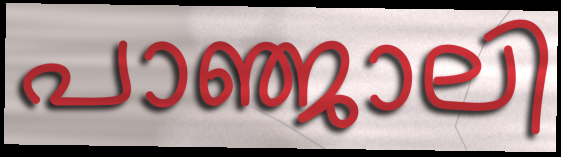
പാഞ്ജാലി